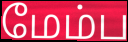
மேம்ப